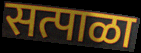
सत्पाळा